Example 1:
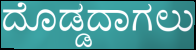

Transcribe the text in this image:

ದೊಡ್ಡದಾಗಲು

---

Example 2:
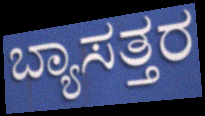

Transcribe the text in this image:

ಬ್ಯಾಸತ್ತರ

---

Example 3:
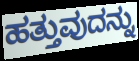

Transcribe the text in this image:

ಹತ್ತುವುದನ್ನು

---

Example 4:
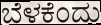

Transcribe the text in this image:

ಬೆಳಕೆಂದು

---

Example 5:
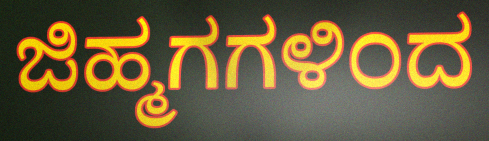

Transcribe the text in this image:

ಜಿಹ್ಮಗಗಳಿಂದ